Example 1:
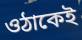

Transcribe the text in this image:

ওঠাকেই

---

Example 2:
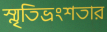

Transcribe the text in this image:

স্মৃতিভ্রংশতার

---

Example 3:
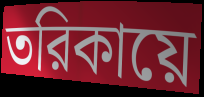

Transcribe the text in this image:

তরিকায়ে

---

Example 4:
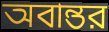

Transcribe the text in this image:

অবান্তর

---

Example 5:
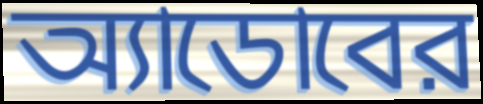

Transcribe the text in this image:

অ্যাডোবের